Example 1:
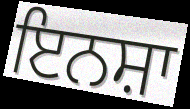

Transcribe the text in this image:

ਇਨਸ਼ਾ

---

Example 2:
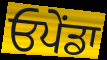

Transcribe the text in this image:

ਓਪੇਂਡਾ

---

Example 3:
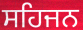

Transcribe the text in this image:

ਸਹਿਜਨ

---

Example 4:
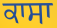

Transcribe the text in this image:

ਕਾਸਾ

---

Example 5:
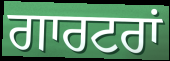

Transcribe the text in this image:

ਗਾਰਟਰਾਂ